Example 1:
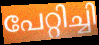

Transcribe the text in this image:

പേറ്റിച്ചി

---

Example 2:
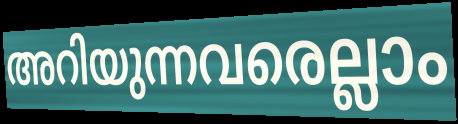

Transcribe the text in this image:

അറിയുന്നവരെല്ലാം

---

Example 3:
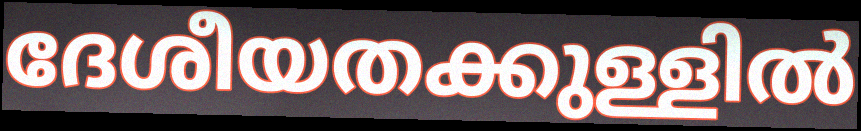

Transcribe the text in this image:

ദേശീയതക്കുള്ളിൽ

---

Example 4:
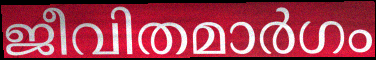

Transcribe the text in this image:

ജീവിതമാർഗം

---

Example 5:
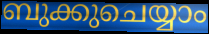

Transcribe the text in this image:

ബുക്കുചെയ്യാം